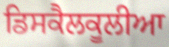
ਡਿਸਕੈਲਕੂਲੀਆ